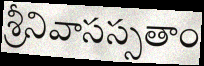
శ్రీనివాసస్సతాం